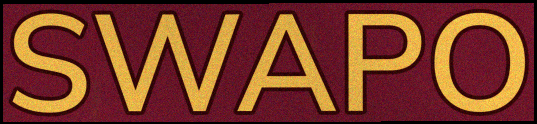
SWAPO